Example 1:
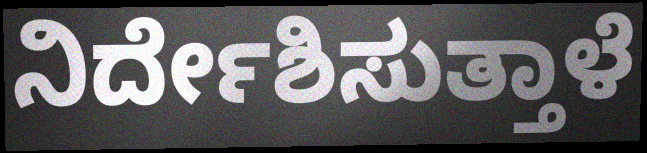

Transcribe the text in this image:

ನಿರ್ದೇಶಿಸುತ್ತಾಳೆ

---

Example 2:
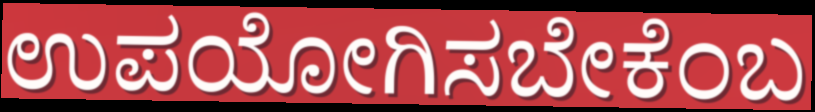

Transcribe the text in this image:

ಉಪಯೋಗಿಸಬೇಕೆಂಬ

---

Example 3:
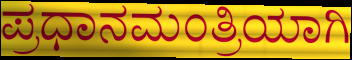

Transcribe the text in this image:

ಪ್ರಧಾನಮಂತ್ರಿಯಾಗಿ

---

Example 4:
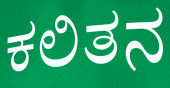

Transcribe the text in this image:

ಕಲಿತನ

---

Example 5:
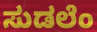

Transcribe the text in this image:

ಸುಡಲೆಂ